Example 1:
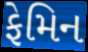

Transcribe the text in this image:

ફેમિન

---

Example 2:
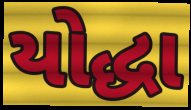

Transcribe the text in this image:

યોદ્ધા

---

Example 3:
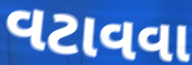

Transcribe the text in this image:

વટાવવા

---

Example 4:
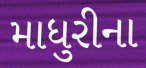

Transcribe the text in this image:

માધુરીના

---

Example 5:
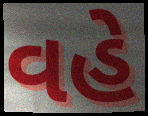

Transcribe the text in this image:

વહે